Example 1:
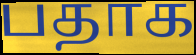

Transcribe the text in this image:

பதாக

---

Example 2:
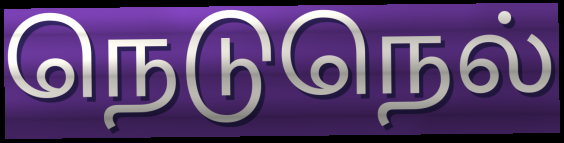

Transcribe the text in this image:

நெடுநெல்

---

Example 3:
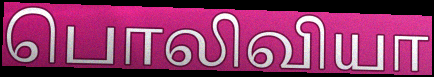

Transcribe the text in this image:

பொலிவியா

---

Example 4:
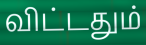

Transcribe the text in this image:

விட்டதும்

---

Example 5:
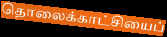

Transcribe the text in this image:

தொலைக்காட்சியைப்